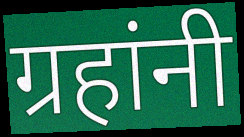
ग्रहांनी